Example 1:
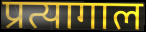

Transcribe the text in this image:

प्रत्यागाल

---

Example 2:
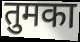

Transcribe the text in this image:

तुमका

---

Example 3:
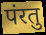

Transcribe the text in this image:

पंरतु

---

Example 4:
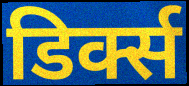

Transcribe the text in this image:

डिर्क्स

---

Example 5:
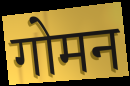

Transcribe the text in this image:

गोमन